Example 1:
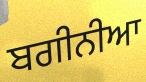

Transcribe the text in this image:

ਬਗੀਨੀਆ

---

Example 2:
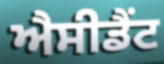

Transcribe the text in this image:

ਐਸੀਡੈਂਟ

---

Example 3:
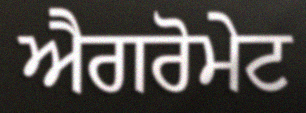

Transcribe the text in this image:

ਐਗਰੋਮੇਟ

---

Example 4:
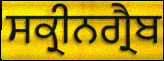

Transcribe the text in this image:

ਸਕ੍ਰੀਨਗ੍ਰੈਬ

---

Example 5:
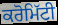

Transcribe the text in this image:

ਕਰੋਮਿੱਟੀ